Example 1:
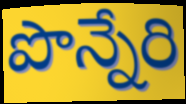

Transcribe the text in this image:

పొన్నేరి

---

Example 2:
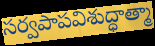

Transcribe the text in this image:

సర్వపాపవిశుద్ధాత్మా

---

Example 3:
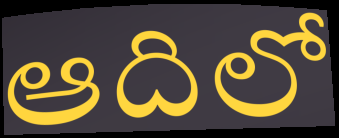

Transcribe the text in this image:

ఆదిలో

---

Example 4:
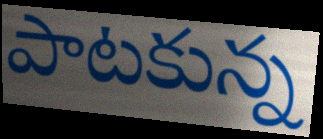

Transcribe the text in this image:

పాటకున్న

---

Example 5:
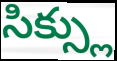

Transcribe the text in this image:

సిక్స్లు